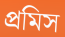
প্রমিস